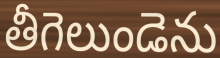
తీగెలుండెను